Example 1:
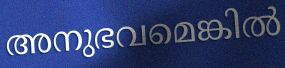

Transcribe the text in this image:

അനുഭവമെങ്കിൽ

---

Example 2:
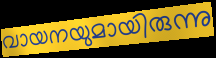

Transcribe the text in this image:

വായനയുമായിരുന്നു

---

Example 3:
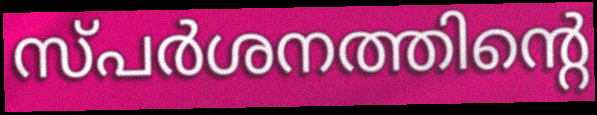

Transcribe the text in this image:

സ്പർശനത്തിന്റെ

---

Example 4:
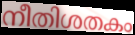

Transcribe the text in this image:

നീതിശതകം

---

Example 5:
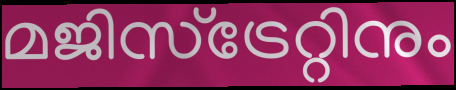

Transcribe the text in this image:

മജിസ്ട്രേറ്റിനും